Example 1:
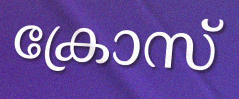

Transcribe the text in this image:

ക്രോസ്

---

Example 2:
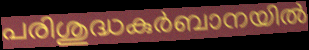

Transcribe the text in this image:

പരിശുദ്ധകുർബാനയിൽ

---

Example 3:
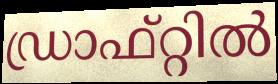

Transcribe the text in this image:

ഡ്രാഫ്റ്റിൽ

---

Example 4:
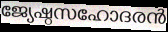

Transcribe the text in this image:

ജ്യേഷ്ഠസഹോദരൻ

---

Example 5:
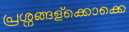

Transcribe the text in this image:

പ്രശ്നങ്ങള്ക്കൊക്കെ